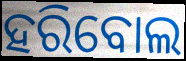
ହରିବୋଲ